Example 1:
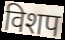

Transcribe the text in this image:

विशप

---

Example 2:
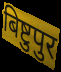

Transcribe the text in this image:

बिष्टुपुर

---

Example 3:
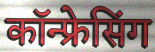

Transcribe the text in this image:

कॉन्फ्रेसिंग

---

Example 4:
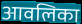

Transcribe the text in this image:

आवलिका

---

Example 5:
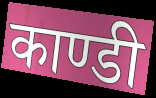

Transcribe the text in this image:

काण्डी